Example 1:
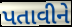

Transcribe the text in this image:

પતાવીને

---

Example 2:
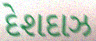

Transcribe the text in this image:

દેશદાઝ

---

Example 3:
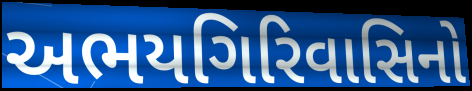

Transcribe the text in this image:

અભયગિરિવાસિનો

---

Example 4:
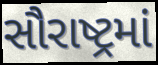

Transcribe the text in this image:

સૌરાષ્ટ્રમાં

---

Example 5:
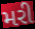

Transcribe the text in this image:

મરી